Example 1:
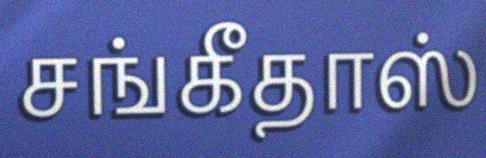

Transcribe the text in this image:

சங்கீதாஸ்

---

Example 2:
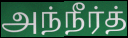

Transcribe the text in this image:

அந்நீர்த்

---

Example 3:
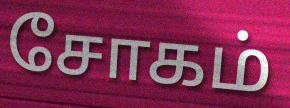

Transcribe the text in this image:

சோகம்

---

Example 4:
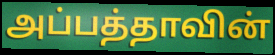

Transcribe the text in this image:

அப்பத்தாவின்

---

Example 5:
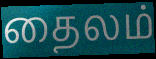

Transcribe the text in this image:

தைலம்